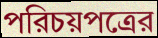
পরিচয়পত্রের